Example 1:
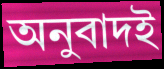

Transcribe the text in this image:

অনুবাদই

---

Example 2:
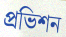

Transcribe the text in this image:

প্রভিশন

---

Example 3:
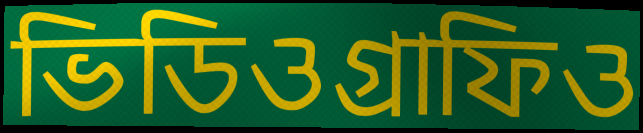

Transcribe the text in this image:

ভিডিওগ্রাফিও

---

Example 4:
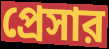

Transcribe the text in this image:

প্রেসার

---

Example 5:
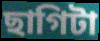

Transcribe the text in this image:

ছাগিটা